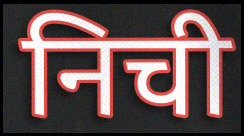
निची